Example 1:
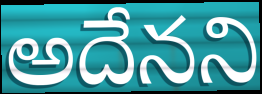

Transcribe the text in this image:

అదేనని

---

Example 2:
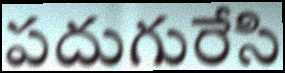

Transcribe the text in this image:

పదుగురేసి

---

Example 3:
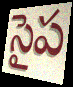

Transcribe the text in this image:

సైప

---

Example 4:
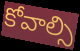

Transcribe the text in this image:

కోవాల్సి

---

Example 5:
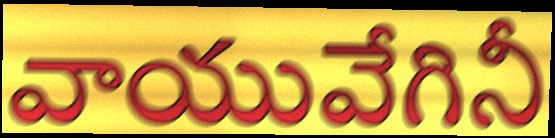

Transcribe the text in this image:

వాయువేగినీ